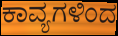
ಕಾವ್ಯಗಳಿಂದ